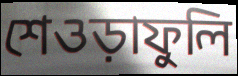
শেওড়াফুলি